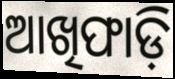
ଆଖିଫାଡ଼ି